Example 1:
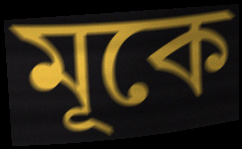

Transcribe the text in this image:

মূকে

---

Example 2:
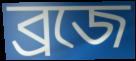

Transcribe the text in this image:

ব্রজে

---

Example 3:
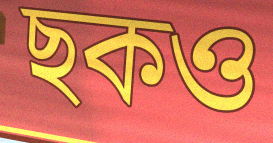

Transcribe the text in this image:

ছকও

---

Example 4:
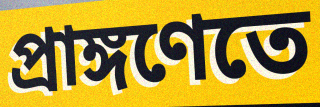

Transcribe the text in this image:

প্রাঙ্গণেতে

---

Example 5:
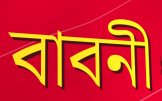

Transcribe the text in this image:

বাবনী